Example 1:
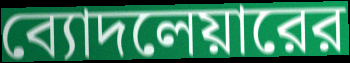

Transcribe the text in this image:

ব্যোদলেয়ারের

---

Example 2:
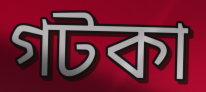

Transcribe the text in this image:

গটকা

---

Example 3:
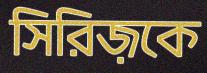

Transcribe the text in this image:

সিরিজ়কে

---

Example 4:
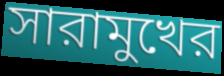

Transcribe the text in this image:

সারামুখের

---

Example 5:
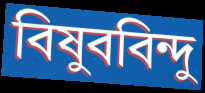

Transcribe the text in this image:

বিষুববিন্দু